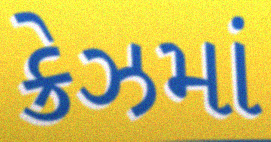
ક્રેઝમાં